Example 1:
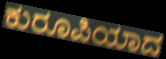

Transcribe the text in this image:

ಕುರೂಪಿಯಾದ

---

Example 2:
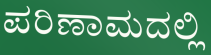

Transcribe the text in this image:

ಪರಿಣಾಮದಲ್ಲಿ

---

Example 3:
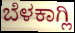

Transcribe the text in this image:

ಬೆಳಕಾಗ್ಲಿ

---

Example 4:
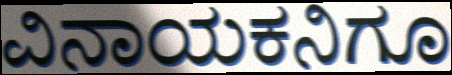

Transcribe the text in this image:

ವಿನಾಯಕನಿಗೂ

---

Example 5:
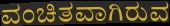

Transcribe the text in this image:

ವಂಚಿತವಾಗಿರುವ